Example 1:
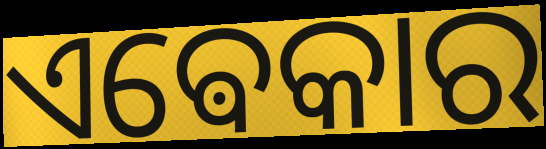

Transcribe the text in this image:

ଏଵେକାର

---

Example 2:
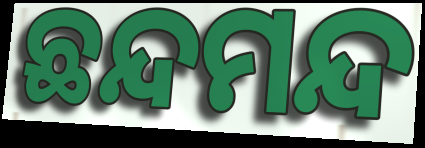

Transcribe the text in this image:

ଛନ୍ଦମନ୍ଦ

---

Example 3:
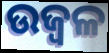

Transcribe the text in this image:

ଉଜ୍ବଳ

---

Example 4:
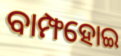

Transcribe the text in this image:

ବାମ୍ଫହୋଇ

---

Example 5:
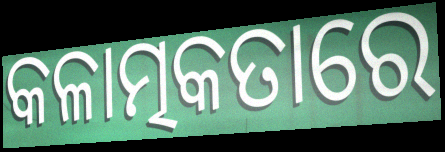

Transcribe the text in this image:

କଳାତ୍ମକତାରେ